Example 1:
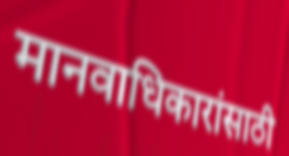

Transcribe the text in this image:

मानवाधिकारांसाठी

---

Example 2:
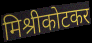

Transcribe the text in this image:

मिश्रीकोटकर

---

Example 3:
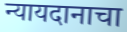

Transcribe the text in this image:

न्यायदानाचा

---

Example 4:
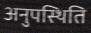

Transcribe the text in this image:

अनुपस्थिति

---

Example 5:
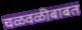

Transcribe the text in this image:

चळवळीबाबत